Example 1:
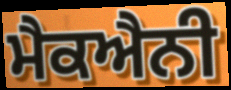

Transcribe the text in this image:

ਮੈਕਐਨੀ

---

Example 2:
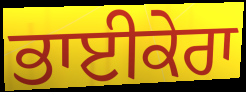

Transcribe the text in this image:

ਭਾਈਕੇਰਾ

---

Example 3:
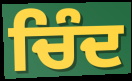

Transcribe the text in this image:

ਚਿੰਦ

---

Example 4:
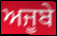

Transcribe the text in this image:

ਅਜੂਬੇ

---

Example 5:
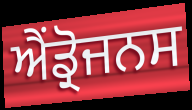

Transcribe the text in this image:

ਐਂਡ੍ਰੋਜਨਸ